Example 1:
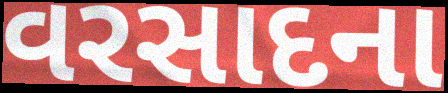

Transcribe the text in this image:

વરસાદના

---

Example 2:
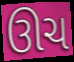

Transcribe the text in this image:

ઊચ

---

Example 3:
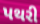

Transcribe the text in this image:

પથરી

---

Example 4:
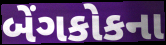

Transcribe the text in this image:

બેંગકોકના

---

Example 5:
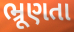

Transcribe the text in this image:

ભ્રૂણતા